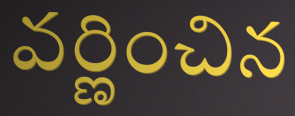
వర్ణించిన